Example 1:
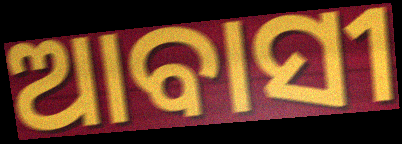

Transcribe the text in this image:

ଆବାସୀ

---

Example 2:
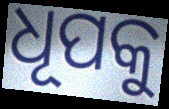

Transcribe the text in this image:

ଧୂପକୁ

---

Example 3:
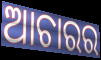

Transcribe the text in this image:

ଆଚାରର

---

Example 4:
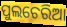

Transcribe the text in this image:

ପୁଲଚେରିଆ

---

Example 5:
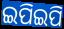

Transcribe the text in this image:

ଇପିଇପି